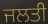
ਜਲਤੀ